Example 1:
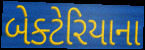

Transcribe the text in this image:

બેક્ટેરિયાના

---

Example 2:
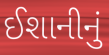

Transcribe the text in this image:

ઈશાનીનું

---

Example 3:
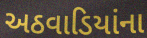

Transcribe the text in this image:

અઠવાડિયાંના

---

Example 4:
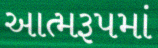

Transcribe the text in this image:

આત્મરૂપમાં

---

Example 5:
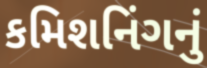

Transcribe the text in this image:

કમિશનિંગનું